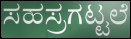
ಸಹಸ್ರಗಟ್ಟಲೆ